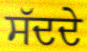
ਸੱਦਦੇ